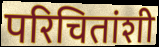
परिचितांशी